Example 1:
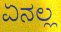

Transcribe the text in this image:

ಏನಲ್ಲ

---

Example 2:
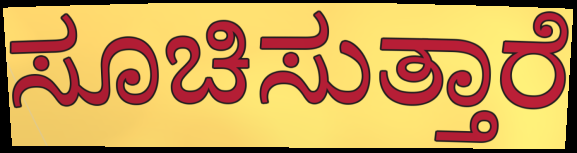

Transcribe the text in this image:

ಸೂಚಿಸುತ್ತಾರೆ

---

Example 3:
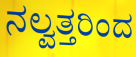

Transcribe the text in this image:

ನಲ್ವತ್ತರಿಂದ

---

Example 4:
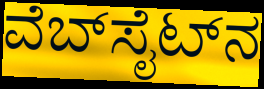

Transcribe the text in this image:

ವೆಬ್‍ಸೈಟ್‍ನ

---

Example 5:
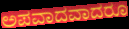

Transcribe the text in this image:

ಅಪವಾದವಾದರೂ